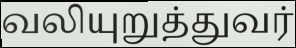
வலியுறுத்துவர்